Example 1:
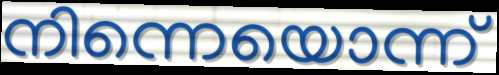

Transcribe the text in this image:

നിന്നെയൊന്ന്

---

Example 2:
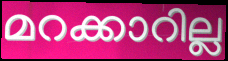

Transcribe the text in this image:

മറക്കാറില്ല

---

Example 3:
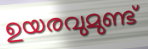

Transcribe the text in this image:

ഉയരവുമുണ്ട്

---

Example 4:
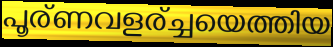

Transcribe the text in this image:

പൂര്ണവളര്ച്ചയെത്തിയ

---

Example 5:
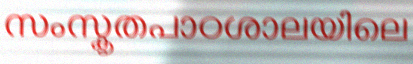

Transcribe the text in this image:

സംസ്കൃതപാഠശാലയിലെ